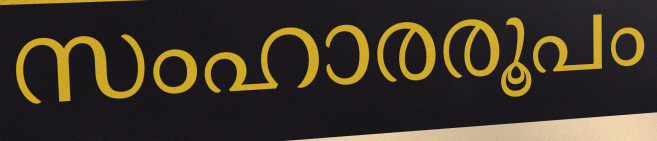
സംഹാരരൂപം